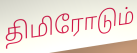
திமிரோடும்